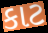
કાટ